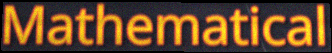
Mathematical